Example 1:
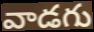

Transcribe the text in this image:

వాడగు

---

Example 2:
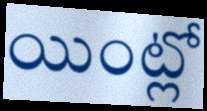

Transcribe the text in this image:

యింట్లో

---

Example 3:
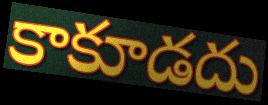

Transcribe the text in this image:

కాకూడదు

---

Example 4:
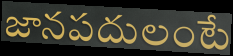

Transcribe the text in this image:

జానపదులంటే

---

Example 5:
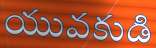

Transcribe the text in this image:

యువకుడి